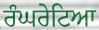
ਰੰਘਰੇਟਿਆ